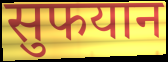
सुफयान